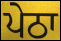
ਪੇਠਾ